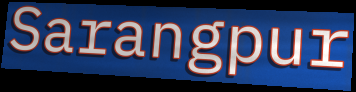
Sarangpur